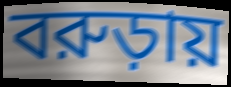
বরুড়ায়